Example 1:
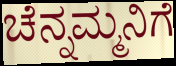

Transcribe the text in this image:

ಚೆನ್ನಮ್ಮನಿಗೆ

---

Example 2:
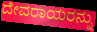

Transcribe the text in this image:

ದೇವರಾಯರನ್ನು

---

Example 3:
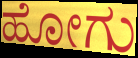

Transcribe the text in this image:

ಹೋಗು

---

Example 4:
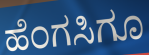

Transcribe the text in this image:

ಹೆಂಗಸಿಗೂ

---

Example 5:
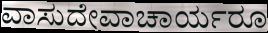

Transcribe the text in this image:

ವಾಸುದೇವಾಚಾರ್ಯರೂ